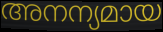
അനന്യമായ